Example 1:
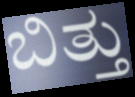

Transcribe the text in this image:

ಬಿತ್ತು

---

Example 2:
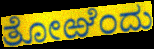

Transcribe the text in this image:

ತೋಱೆಂದು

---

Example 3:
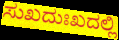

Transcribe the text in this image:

ಸುಖದುಃಖದಲ್ಲಿ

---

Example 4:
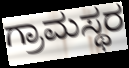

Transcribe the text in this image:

ಗ್ರಾಮಸ್ಥರ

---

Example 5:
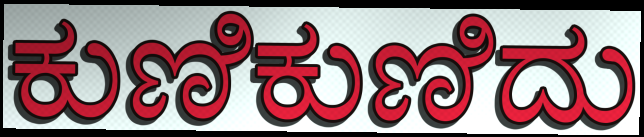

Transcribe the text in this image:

ಕುಣಿಕುಣಿದು